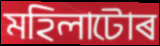
মহিলাটোৰ